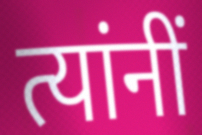
त्यांनीं